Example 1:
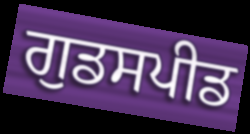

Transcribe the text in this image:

ਗੁਡਸਪੀਡ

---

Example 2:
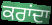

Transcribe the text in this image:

ਕਰਾਂਦਾ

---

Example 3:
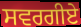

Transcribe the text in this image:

ਸਵਰਗੀਏ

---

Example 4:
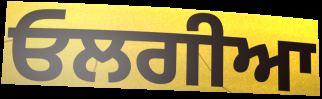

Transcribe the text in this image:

ਓਲਗੀਆ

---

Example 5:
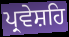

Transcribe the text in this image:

ਪ੍ਰਵੇਸ਼ਹਿ